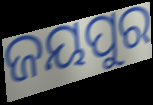
ଜୟପୁର